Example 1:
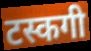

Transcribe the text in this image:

टस्कगी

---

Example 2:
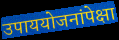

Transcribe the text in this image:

उपाययोजनांपेक्षा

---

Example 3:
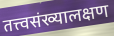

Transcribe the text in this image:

तत्त्वसंख्यालक्षण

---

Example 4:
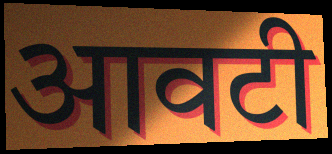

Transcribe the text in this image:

आवटी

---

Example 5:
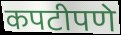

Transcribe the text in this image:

कपटीपणे